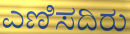
ಎಣಿಸದಿರು